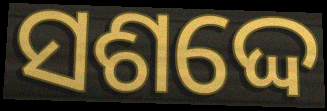
ସଶଦ୍ଦେ